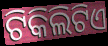
ଟିକିଲିଟିଏ